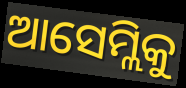
ଆସେମ୍ଲିକୁ